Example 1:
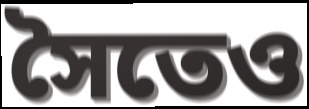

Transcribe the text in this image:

সৈতেও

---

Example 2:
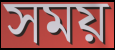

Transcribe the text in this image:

সময়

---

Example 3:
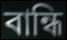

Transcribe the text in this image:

বান্ধি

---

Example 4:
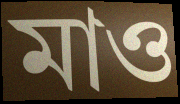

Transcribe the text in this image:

মাও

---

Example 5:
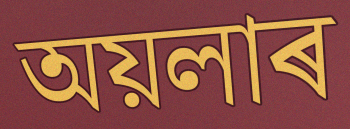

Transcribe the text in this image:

অয়লাৰ